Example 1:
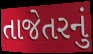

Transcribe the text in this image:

તાજેતરનું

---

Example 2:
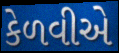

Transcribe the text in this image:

કેળવીએ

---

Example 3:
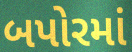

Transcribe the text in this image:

બપોરમાં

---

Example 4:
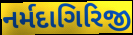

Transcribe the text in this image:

નર્મદાગિરિજી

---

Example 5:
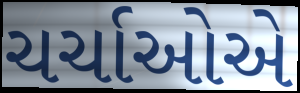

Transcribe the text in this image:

ચર્ચાઓએ